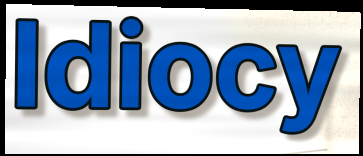
Idiocy